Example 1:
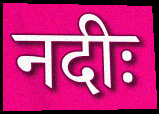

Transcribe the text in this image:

नदीः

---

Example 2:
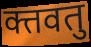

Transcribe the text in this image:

क्तवतु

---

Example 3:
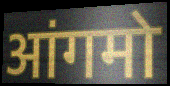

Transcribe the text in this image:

आंगमो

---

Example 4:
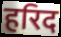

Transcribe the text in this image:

हरिद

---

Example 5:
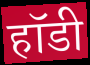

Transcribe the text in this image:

हॉडी